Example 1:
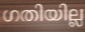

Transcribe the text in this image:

ഗതിയില്ല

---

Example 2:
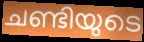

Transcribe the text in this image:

ചണ്ടിയുടെ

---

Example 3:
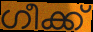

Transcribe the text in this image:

ഗീക്ക്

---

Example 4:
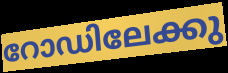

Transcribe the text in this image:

റോഡിലേക്കു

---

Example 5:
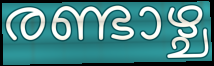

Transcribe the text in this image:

രണ്ടാഴ്ച